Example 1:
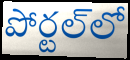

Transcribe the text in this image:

పోర్టల్‌లో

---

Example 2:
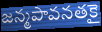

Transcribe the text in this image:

జన్మపావనతకై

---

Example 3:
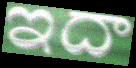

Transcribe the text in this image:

ఇదా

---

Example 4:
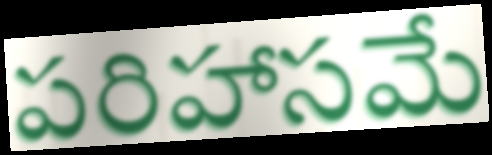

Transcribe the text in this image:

పరిహాసమే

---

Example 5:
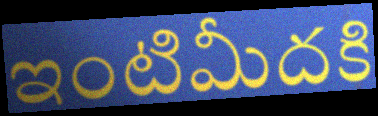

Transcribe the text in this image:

ఇంటిమీదకి